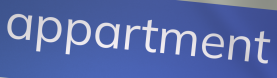
appartment